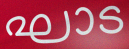
ഘാട